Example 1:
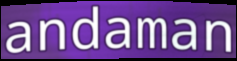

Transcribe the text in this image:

andaman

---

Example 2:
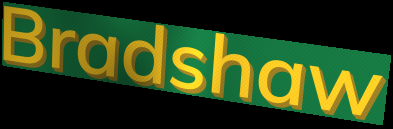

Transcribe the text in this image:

Bradshaw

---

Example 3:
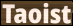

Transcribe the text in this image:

Taoist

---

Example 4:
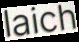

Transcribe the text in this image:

laich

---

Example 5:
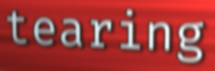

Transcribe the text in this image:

tearing